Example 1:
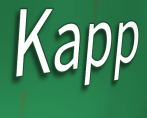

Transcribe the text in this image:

Kapp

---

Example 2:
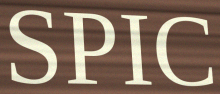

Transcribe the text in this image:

SPIC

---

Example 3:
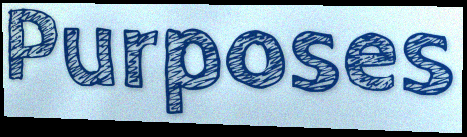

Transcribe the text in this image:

Purposes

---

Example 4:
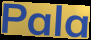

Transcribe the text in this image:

Pala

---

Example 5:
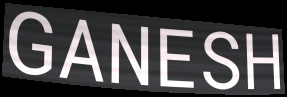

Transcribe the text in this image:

GANESH